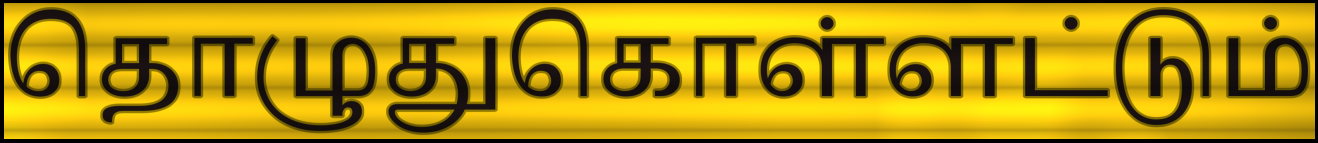
தொழுதுகொள்ளட்டும்